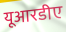
यूआरडीए